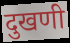
दुखणी